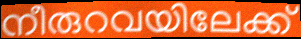
നീരുറവയിലേക്ക്